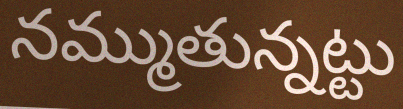
నమ్ముతున్నట్టు